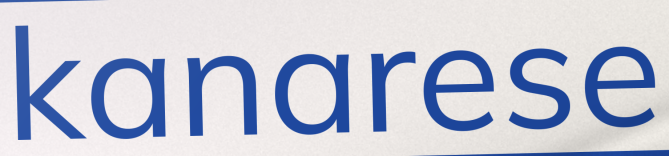
kanarese